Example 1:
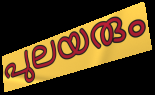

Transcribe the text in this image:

പുലയരും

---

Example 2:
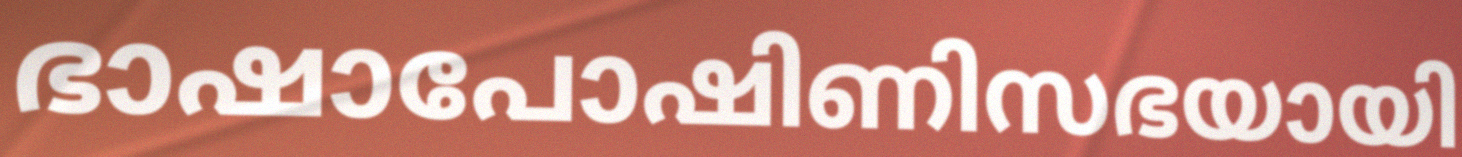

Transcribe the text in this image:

ഭാഷാപോഷിണിസഭയായി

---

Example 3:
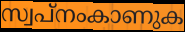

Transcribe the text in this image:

സ്വപ്നംകാണുക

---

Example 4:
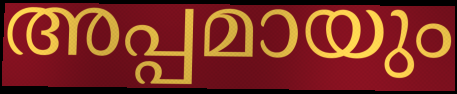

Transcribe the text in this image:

അപ്പമായും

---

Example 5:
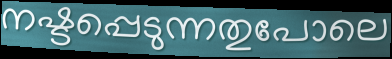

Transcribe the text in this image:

നഷ്ടപ്പെടുന്നതുപോലെ